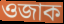
ওজাক